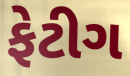
ફેટીગ